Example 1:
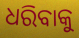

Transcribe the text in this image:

ଧରିବାକୁ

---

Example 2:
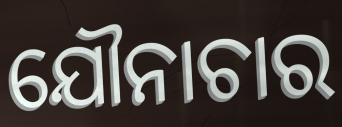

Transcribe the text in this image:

ଯୌନାଚାର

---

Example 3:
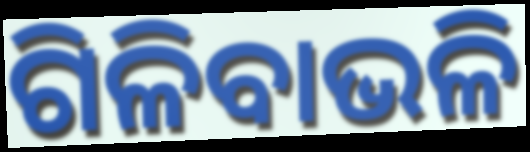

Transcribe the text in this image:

ଗିଳିବାଭଳି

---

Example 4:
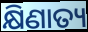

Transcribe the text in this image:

କ୍ଷିଣାତ୍ୟ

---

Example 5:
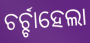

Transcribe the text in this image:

ଚର୍ଚ୍ଚାହେଲା